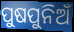
ପୁଷପୁନିଅଁ